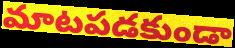
మాటపడకుండా